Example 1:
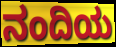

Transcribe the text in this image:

ನಂದಿಯ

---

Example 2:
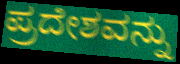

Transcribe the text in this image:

ಪ್ರದೇಶವನ್ನು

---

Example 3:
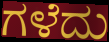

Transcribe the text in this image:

ಗಳೆದು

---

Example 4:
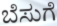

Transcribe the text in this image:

ಬೆಸುಗೆ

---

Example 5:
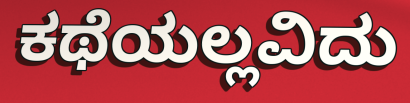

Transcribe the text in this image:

ಕಥೆಯಲ್ಲವಿದು